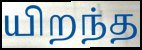
யிறந்த